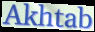
Akhtab